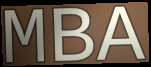
MBA